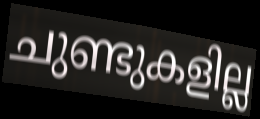
ചുണ്ടുകളില്ല